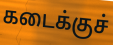
கடைக்குச்